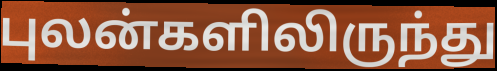
புலன்களிலிருந்து